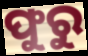
ଫୁରୁ